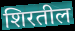
शिरतील